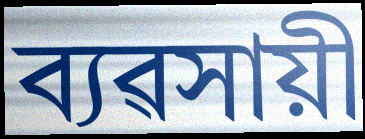
ব্যৱসায়ী